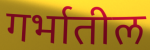
गर्भातील